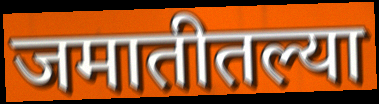
जमातीतल्या